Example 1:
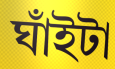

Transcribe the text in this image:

ঘাঁইটা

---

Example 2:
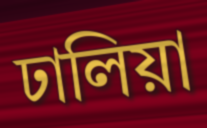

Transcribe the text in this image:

ঢালিয়া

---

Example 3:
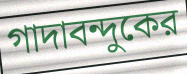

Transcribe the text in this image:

গাদাবন্দুকের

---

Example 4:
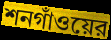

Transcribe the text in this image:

শনগাঁওয়ের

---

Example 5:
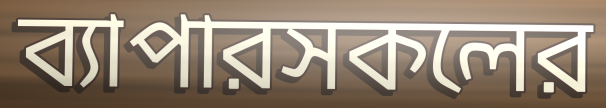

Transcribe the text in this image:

ব্যাপারসকলের